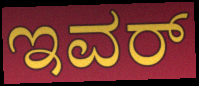
ಇವರ್